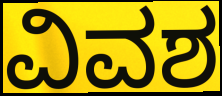
ವಿವಶ